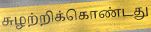
சுழற்றிக்கொண்டது